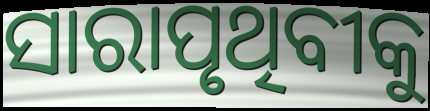
ସାରାପୃଥିବୀକୁ